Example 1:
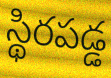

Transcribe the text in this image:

స్థిరపడ్డ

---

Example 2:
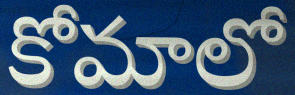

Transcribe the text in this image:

కోమాలో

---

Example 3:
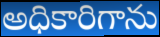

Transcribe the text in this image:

అధికారిగాను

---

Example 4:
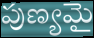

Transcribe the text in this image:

పుణ్యమై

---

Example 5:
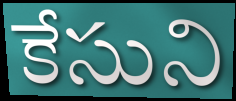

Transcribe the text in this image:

కేసుని